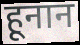
हूनान